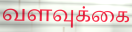
வளவுக்கை